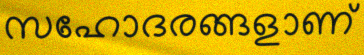
സഹോദരങ്ങളാണ്